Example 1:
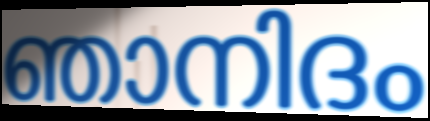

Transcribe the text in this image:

ഞാനിദം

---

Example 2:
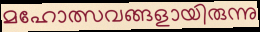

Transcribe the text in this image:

മഹോത്സവങ്ങളായിരുന്നു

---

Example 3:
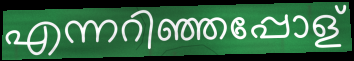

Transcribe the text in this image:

എന്നറിഞ്ഞപ്പോള്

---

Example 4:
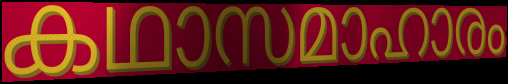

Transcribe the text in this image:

കഥാസമാഹാരം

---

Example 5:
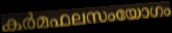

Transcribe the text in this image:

കർമഫലസംയോഗം